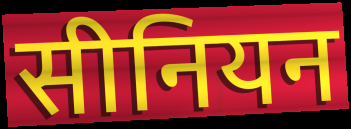
सीनियन